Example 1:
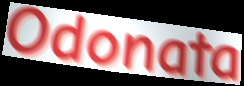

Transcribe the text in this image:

Odonata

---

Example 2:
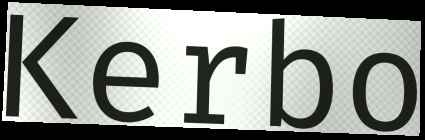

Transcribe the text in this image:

Kerbo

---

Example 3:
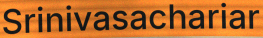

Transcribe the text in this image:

Srinivasachariar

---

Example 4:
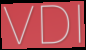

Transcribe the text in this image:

VDI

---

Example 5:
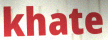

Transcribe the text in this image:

khate